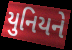
યુનિયને